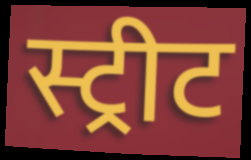
स्ट्रीट